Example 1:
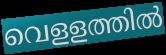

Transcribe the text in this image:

വെളളത്തിൽ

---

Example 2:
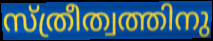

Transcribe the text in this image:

സ്ത്രീത്വത്തിനു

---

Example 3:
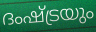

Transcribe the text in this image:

ദംഷ്ട്രയും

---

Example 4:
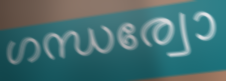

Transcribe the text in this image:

ഗന്ധര്വോ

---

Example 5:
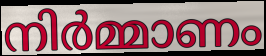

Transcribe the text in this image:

നിർമ്മാണം